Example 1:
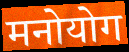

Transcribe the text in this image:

मनोयोग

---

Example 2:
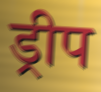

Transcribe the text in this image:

ड्रीप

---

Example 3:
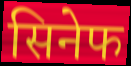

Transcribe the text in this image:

सिनेफ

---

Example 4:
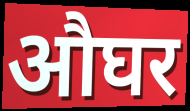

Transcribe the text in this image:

औघर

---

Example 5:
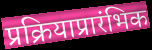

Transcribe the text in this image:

प्रक्रियाप्रारंभिक